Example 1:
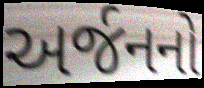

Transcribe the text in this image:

અર્જનનો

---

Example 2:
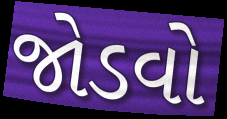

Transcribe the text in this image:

જોડવો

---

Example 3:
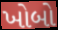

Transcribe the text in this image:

ખોબો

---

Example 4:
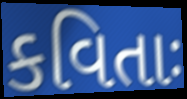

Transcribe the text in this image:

કવિતાઃ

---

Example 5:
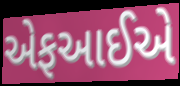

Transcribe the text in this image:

એફઆઈએ